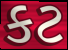
કટ